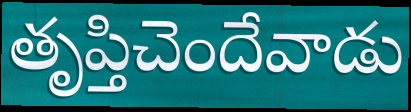
తృప్తిచెందేవాడు